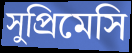
সুপ্রিমেসি